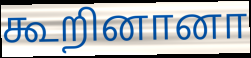
கூறினானா